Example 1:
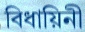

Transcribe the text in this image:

বিধায়িনী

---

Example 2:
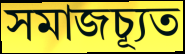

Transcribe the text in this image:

সমাজচ্যূত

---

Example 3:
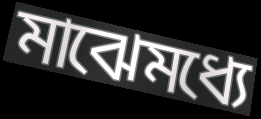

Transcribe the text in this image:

মাঝেমধ্যে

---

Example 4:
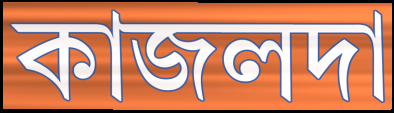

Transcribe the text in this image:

কাজলদা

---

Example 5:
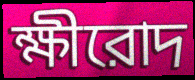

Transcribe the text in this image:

ক্ষীরোদ